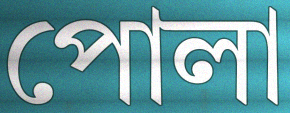
পোলা